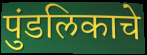
पुंडलिकाचे